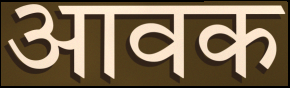
आवक